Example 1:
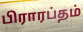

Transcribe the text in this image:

பிராரப்தம்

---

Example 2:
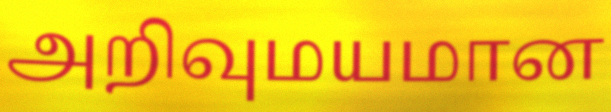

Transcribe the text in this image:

அறிவுமயமான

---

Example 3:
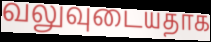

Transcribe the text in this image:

வலுவுடையதாக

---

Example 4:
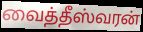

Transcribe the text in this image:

வைத்தீஸ்வரன்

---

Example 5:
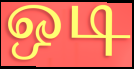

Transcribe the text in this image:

ஒடி